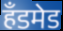
हॅंडमेड